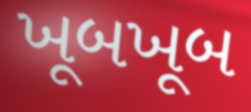
ખૂબખૂબ